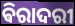
ଵିରାଦରୀ